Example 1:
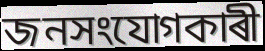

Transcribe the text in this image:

জনসংযোগকাৰী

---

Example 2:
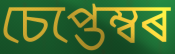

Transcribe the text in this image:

চেপ্তেম্বৰ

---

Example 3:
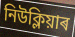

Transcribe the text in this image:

নিউক্লিয়াৰ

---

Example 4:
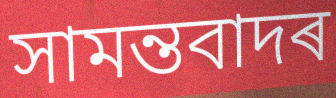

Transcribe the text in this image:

সামন্তবাদৰ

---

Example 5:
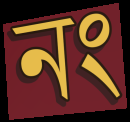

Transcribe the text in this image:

নং